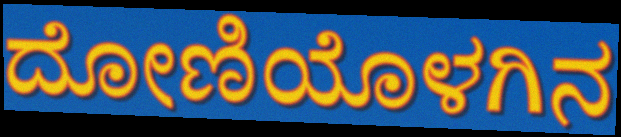
ದೋಣಿಯೊಳಗಿನ